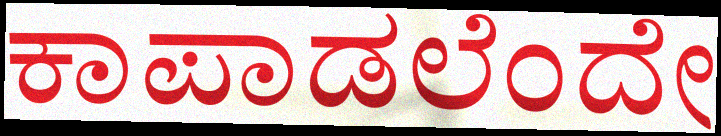
ಕಾಪಾಡಲೆಂದೇ